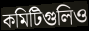
কমিটিগুলিও